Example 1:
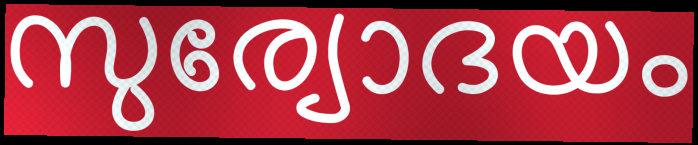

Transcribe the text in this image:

സുര്യോദയം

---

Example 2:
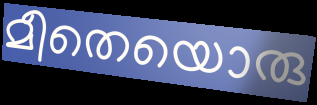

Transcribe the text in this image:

മീതെയൊരു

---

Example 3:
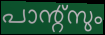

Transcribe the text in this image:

പാന്റ്സും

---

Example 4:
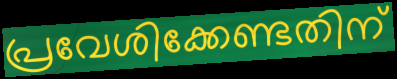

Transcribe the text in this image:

പ്രവേശിക്കേണ്ടതിന്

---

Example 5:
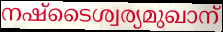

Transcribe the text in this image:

നഷ്ടൈശ്വര്യമുഖാന്